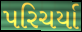
પરિચર્યા